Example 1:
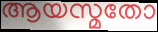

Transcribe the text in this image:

ആയസ്മതോ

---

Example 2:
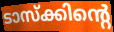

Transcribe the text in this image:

ടാസ്ക്കിന്റെ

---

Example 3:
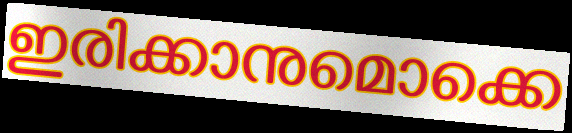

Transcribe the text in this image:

ഇരിക്കാനുമൊക്കെ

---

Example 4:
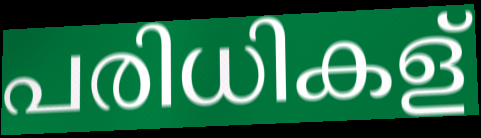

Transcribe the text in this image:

പരിധികള്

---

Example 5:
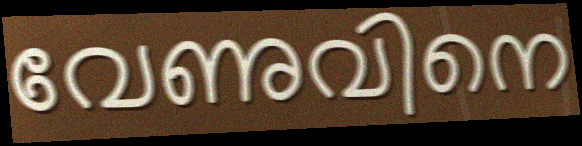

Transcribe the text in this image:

വേണുവിനെ